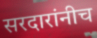
सरदारांनीच